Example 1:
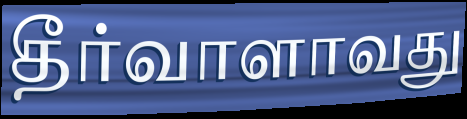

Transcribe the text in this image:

தீர்வாளாவது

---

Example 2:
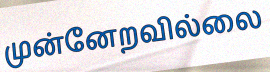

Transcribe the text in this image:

முன்னேறவில்லை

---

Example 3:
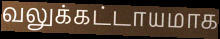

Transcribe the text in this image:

வலுக்கட்டாயமாக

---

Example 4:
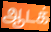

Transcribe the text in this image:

ஆடக்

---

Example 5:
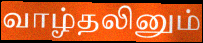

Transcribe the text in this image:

வாழ்தலினும்